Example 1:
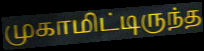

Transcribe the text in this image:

முகாமிட்டிருந்த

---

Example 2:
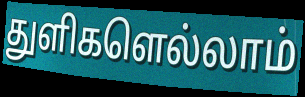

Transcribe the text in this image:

துளிகளெல்லாம்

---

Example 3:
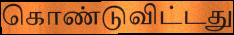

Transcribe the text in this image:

கொண்டுவிட்டது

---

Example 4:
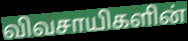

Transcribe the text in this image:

விவசாயிகளின்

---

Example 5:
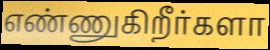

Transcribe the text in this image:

எண்ணுகிறீர்களா